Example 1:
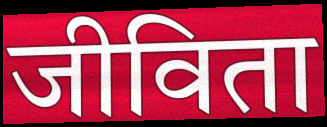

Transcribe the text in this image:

जीविता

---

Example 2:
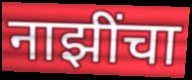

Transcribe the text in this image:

नाझींचा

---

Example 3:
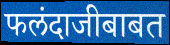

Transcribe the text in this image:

फलंदाजीबाबत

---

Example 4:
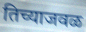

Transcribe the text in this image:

तिच्याजवळ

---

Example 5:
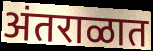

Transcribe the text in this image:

अंतराळात